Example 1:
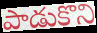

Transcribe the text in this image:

పాడుకొని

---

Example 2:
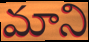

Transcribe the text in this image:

మాని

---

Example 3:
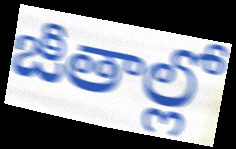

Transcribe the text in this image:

జీతాల్లో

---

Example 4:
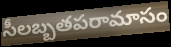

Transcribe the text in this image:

సీలబ్బతపరామాసం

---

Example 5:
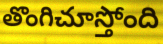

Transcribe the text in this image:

తొంగిచూస్తోంది